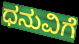
ಧನುವಿಗೆ